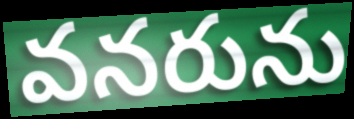
వనరును